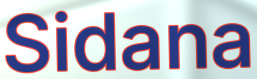
Sidana